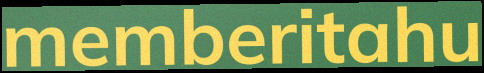
memberitahu